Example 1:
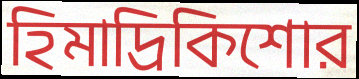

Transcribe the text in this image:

হিমাদ্রিকিশোর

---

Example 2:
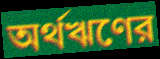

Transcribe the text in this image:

অর্থঋণের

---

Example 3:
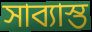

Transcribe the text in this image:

সাব্যাস্ত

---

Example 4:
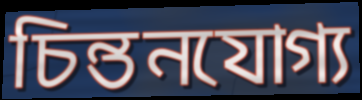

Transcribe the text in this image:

চিন্তনযোগ্য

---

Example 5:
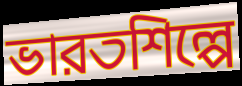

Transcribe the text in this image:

ভারতশিল্পে